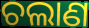
ଚଲାଣ